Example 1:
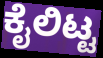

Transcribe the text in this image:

ಕೈಲಿಟ್ಟ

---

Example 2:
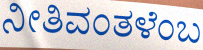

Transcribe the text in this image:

ನೀತಿವಂತಳೆಂಬ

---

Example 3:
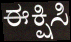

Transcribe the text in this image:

ಈಕ್ಷಿಸಿ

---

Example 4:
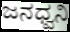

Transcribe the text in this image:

ಜನಧ್ವನಿ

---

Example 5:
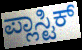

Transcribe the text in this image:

ಪ್ಲಾಸ್ಟಿಕ್